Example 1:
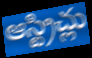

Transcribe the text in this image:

ఆస్ట్రిచ్లు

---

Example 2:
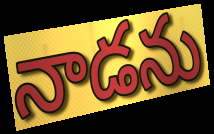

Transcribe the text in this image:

నాడను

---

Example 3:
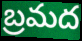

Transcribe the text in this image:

బ్రమద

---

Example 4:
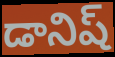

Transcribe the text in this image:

డానిష్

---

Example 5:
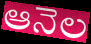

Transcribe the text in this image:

ఆనెల